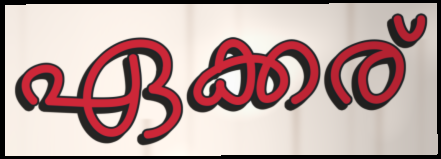
ഏക്കര്